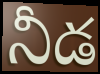
నీడ